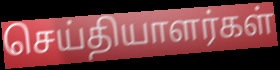
செய்தியாளர்கள்